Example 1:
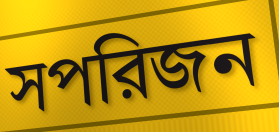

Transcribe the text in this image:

সপরিজন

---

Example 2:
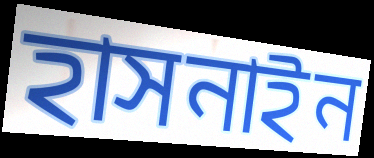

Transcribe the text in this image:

হাসনাইন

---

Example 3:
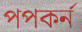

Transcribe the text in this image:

পপকর্ন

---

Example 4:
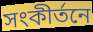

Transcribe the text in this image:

সংকীর্তনে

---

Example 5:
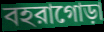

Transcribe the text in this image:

বহরাগোড়া